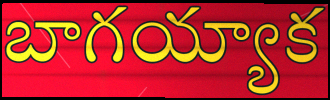
బాగయ్యాక